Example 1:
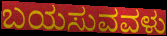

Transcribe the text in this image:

ಬಯಸುವವಳು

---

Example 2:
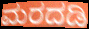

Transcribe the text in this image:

ಮರದಡಿ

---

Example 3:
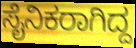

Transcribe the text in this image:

ಸೈನಿಕರಾಗಿದ್ದ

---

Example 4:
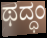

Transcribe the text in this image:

ಥದ್ಧಂ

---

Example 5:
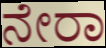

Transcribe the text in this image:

ನೇರಾ